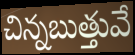
చిన్నబుత్తువే